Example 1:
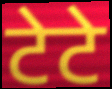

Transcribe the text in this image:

टेटे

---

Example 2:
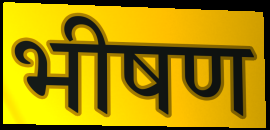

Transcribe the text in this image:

भीषण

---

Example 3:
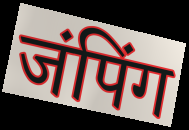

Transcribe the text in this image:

जंपिंग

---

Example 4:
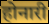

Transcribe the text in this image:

होनारी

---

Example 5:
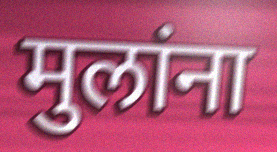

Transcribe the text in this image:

मुलांना